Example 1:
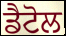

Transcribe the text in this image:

ਡੈਟੋਲ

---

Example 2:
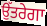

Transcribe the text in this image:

ਉੱਤਰੇਗਾ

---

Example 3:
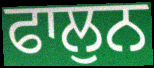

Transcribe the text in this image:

ਫਾਲੁਨ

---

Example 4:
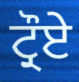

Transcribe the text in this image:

ਟ੍ਰੌਏ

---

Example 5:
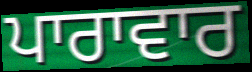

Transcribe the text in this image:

ਪਾਰਾਵਾਰ